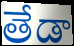
తేడా